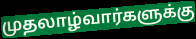
முதலாழ்வார்களுக்கு